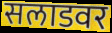
सलाडवर